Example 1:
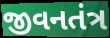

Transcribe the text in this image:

જીવનતંત્ર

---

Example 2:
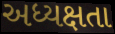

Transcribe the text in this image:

અધ્યક્ષતા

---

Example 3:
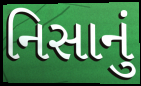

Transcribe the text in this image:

નિસાનું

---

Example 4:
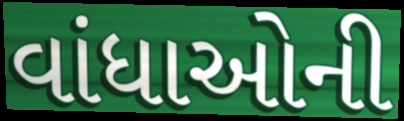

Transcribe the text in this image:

વાંધાઓની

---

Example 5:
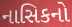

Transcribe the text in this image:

નાસિકનો